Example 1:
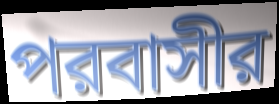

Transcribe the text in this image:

পরবাসীর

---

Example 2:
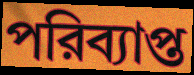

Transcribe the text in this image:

পরিব্যাপ্ত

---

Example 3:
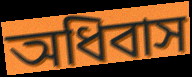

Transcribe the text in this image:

অধিবাস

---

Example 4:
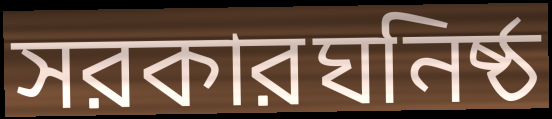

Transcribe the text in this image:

সরকারঘনিষ্ঠ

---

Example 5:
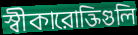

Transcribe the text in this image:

স্বীকারোক্তিগুলি